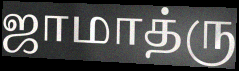
ஜாமாத்ரு